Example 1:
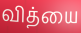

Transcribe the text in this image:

வித்யை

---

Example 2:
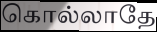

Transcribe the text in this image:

கொல்லாதே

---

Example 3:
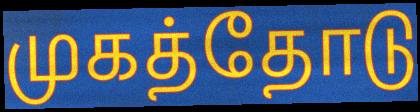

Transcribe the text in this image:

முகத்தோடு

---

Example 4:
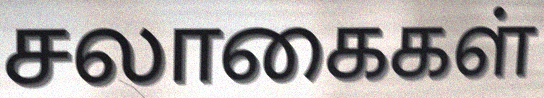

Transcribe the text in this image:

சலாகைகள்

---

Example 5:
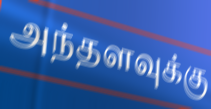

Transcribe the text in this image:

அந்தளவுக்கு